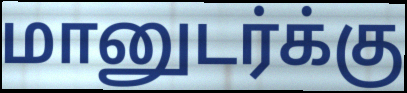
மானுடர்க்கு